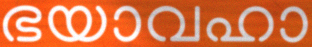
ഭയാവഹാ